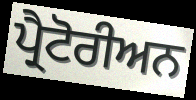
ਪ੍ਰੈਟੋਰੀਅਨ